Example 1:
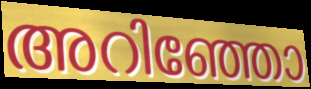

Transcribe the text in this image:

അറിഞ്ഞോ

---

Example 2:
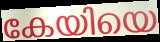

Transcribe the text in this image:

കേയിയെ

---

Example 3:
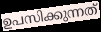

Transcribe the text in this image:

ഉപസിക്കുന്നത്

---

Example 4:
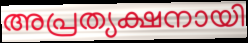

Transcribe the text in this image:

അപ്രത്യക്ഷനായി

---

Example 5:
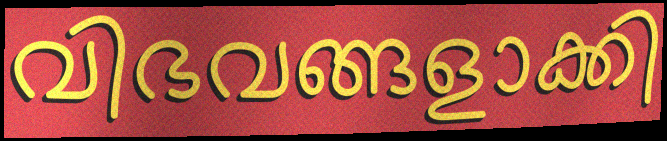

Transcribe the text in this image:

വിഭവങ്ങളാക്കി